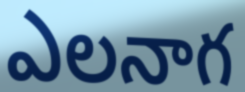
ఎలనాగ